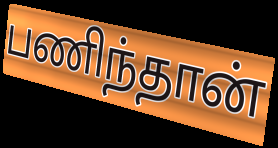
பணிந்தான்